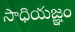
సాధియజ్ఞం